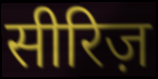
सीरिज़